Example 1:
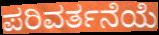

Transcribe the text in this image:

ಪರಿವರ್ತನೆಯೆ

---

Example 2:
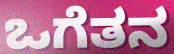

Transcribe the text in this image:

ಒಗೆತನ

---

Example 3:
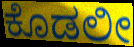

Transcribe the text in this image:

ಕೊಡಲೀ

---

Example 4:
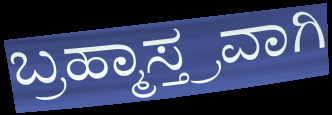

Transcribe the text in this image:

ಬ್ರಹ್ಮಾಸ್ತ್ರವಾಗಿ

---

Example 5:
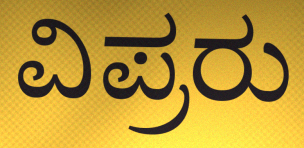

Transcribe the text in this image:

ವಿಪ್ರರು